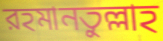
রহমানতুল্লাহ